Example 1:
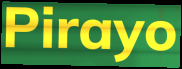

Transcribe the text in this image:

Pirayo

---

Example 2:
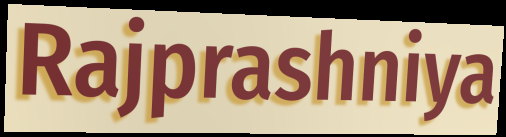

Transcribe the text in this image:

Rajprashniya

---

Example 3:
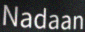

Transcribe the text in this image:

Nadaan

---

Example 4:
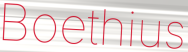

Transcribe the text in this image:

Boethius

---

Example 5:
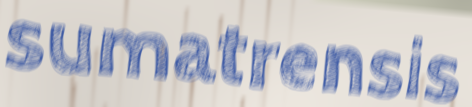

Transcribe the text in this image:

sumatrensis